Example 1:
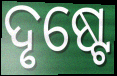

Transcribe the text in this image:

ଦୃଷ୍ଟେ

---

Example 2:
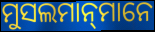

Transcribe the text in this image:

ମୁସଲମାନ୍‌ମାନେ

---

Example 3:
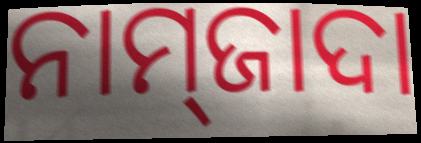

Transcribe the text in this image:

ନାମ୍‍ଜାଦା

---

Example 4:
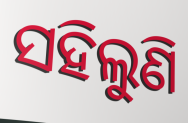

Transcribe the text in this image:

ସହିଲୁଣି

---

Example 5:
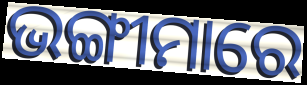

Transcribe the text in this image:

ଭଙ୍ଗୀମାରେ